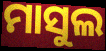
ମାସୁଲ